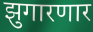
झुगारणार